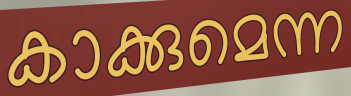
കാക്കുമെന്ന